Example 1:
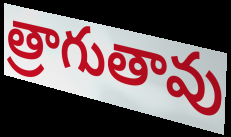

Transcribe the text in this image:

త్రాగుతావు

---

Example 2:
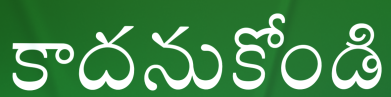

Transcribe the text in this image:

కాదనుకోండి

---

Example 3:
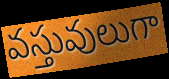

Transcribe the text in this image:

వస్తువులుగా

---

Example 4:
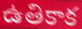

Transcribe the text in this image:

ఉతికాక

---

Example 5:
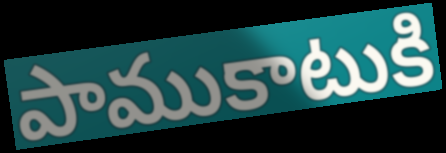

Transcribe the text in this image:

పాముకాటుకి